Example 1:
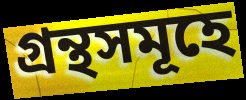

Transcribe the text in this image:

গ্রন্থসমূহে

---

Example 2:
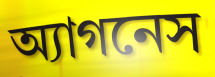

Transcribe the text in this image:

অ্যাগনেস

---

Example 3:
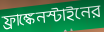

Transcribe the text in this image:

ফ্রাঙ্কেনস্টাইনের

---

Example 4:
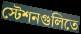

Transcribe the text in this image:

স্টেশনগুলিতে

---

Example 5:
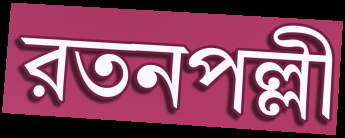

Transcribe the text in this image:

রতনপল্লী